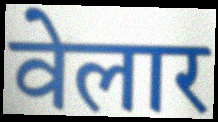
वेलार